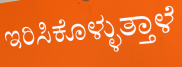
ಇರಿಸಿಕೊಳ್ಳುತ್ತಾಳೆ